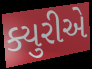
ક્યુરીએ